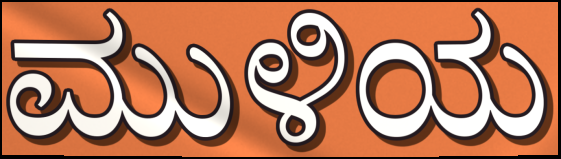
ಮುಳಿಯ